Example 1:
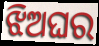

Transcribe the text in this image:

ଝିଅଘର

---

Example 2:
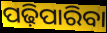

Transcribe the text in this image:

ପଢ଼ିପାରିବା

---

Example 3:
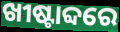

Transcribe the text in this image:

ଖୀଷ୍ଟାବ୍ଦରେ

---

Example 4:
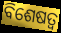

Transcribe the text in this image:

ବିଶେଷତ୍ଵ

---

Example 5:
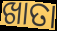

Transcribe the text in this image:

ଖାତା